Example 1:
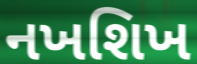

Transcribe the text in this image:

નખશિખ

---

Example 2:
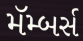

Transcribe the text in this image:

મૅમ્બર્સ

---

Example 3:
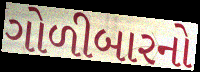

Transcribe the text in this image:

ગોળીબારનો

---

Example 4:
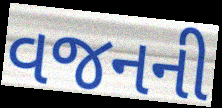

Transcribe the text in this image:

વજનની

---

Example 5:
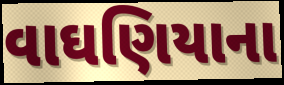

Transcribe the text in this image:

વાઘણિયાના